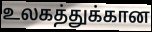
உலகத்துக்கான